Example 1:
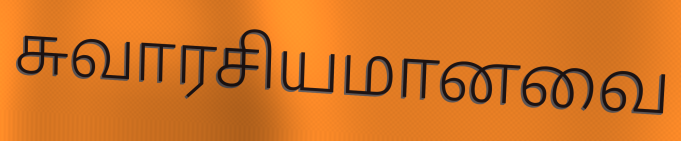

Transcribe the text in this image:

சுவாரசியமானவை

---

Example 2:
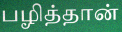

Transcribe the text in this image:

பழித்தான்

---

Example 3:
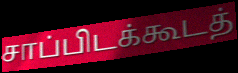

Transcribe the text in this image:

சாப்பிடக்கூடத்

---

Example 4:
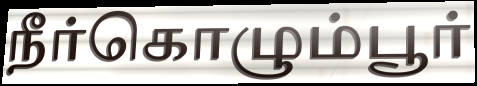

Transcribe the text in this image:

நீர்கொழும்பூர்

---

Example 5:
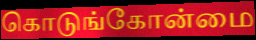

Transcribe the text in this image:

கொடுங்கோன்மை